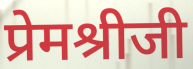
प्रेमश्रीजी